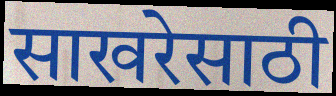
साखरेसाठी